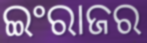
ଇଂରାଜର